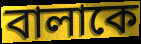
বালাকে